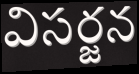
విసర్జన